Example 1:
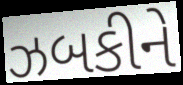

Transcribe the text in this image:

ઝબકીને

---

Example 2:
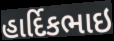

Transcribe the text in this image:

હાર્દિકભાઇ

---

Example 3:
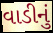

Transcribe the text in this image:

વાડીનું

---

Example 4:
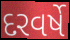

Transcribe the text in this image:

દરવર્ષે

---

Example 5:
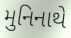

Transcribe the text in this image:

મુનિનાથે